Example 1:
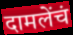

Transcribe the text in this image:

दामलेंचं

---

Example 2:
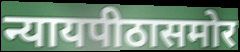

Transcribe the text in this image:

न्यायपीठासमोर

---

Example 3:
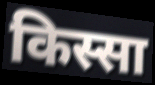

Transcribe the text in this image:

किस्सा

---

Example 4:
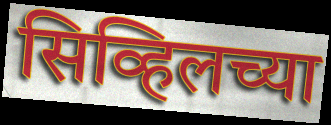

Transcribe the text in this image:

सिव्हिलच्या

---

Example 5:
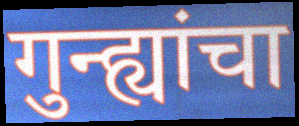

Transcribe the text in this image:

गुन्ह्यांचा